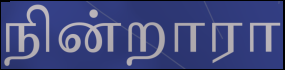
நின்றாரா